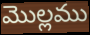
మొల్లము